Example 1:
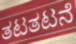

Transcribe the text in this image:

ತಟತಟನೆ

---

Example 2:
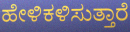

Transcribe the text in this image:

ಹೇಳಿಕಳಿಸುತ್ತಾರೆ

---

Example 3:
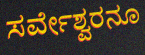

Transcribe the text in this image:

ಸರ್ವೇಶ್ವರನೂ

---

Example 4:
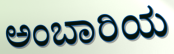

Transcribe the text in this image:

ಅಂಬಾರಿಯ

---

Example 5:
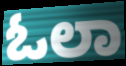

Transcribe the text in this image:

ಓಲಾ